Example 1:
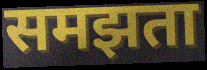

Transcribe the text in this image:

समझता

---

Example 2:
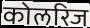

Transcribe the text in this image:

कोलरिज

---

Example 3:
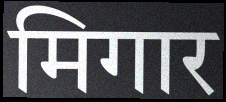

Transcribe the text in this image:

मिगार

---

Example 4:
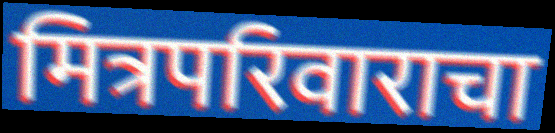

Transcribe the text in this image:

मित्रपरिवाराचा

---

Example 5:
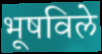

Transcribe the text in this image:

भूषविले